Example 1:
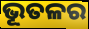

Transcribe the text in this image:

ଭୂତଳର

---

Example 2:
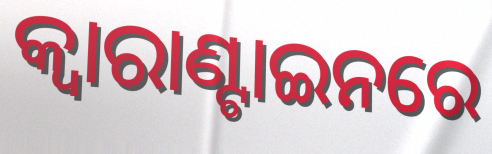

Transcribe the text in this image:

କ୍ବାରାଣ୍ଟାଇନରେ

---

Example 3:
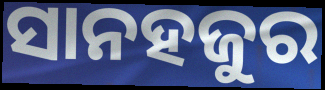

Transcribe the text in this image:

ସାନହଜୁର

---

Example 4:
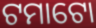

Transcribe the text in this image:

ଟମାଟୋ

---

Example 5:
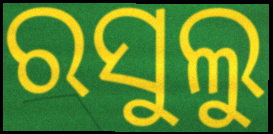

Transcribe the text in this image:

ରସୁଲୁ